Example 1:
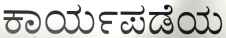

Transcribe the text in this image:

ಕಾರ್ಯಪಡೆಯ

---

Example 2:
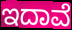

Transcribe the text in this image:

ಇದಾವೆ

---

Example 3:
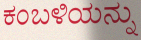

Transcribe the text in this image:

ಕಂಬಳಿಯನ್ನು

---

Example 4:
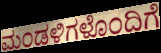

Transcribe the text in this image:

ಮಂಡಳಿಗಳೊಂದಿಗೆ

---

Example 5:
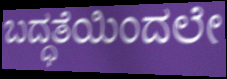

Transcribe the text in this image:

ಬದ್ಧತೆಯಿಂದಲೇ